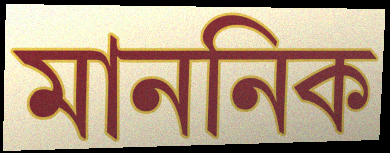
মাননিক